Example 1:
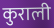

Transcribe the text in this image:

कुराली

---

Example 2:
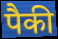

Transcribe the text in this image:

पैकी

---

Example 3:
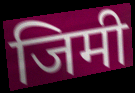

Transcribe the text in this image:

जिमी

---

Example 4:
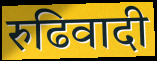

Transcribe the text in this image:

रुढिवादी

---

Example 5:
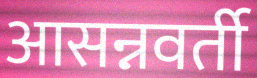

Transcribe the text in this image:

आसन्नवर्ती